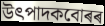
উৎপাদকবোৰৰ